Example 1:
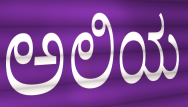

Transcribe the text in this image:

ಅಲಿಯ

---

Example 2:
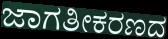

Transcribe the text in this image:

ಜಾಗತೀಕರಣದ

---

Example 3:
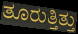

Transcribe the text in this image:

ತೂರುತ್ತಿತ್ತು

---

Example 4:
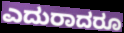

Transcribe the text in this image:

ಎದುರಾದರೂ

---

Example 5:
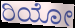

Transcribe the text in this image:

ರಿಯೋ